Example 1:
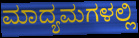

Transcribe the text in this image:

ಮಾದ್ಯಮಗಳಲ್ಲಿ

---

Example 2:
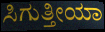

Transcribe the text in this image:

ಸಿಗುತ್ತೀಯಾ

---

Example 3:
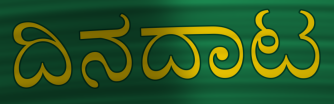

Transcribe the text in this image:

ದಿನದಾಟ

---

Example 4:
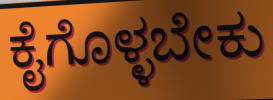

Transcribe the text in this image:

ಕೈಗೊಳ್ಳಬೇಕು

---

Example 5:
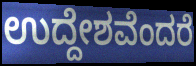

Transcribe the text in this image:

ಉದ್ದೇಶವೆಂದರೆ